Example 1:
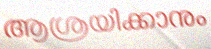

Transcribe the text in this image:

ആശ്രയിക്കാനും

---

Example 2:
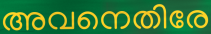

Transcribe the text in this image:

അവനെതിരേ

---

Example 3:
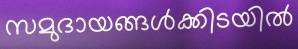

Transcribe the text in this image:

സമുദായങ്ങൾക്കിടയിൽ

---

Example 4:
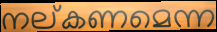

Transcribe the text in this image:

നല്കണമെന്ന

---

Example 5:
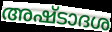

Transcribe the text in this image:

അഷ്ടാദശ